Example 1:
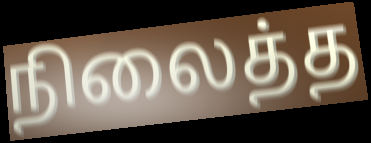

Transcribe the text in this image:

நிலைத்த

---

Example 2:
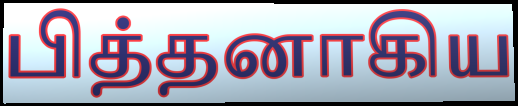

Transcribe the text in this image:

பித்தனாகிய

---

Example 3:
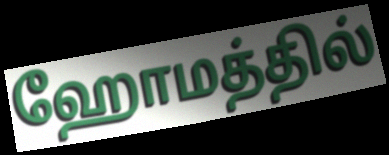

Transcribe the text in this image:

ஹோமத்தில்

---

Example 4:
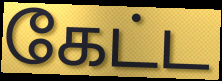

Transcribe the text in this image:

கேட்ட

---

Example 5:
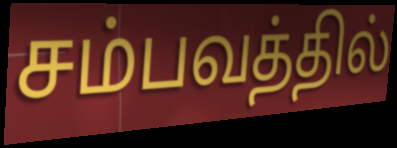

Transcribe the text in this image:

சம்பவத்தில்